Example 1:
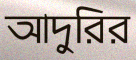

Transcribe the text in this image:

আদুরির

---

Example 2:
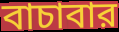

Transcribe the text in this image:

বাচাবার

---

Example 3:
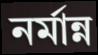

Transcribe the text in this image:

নর্মান্ন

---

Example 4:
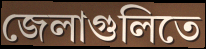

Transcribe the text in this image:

জেলাগুলিতে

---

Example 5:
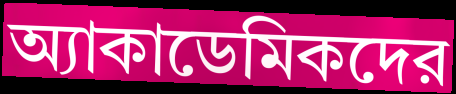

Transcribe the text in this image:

অ্যাকাডেমিকদের